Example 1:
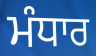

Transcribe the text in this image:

ਮੰਧਾਰ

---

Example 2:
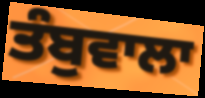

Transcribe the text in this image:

ਤੰਬੁਵਾਲਾ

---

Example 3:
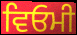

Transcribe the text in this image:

ਵਿਓਮੀ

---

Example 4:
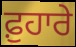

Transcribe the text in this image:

ਫ਼ੁਹਾਰੇ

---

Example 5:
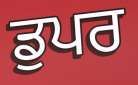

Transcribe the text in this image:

ਡੁਪਰ